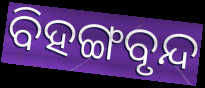
ବିହଙ୍ଗବୃନ୍ଦ